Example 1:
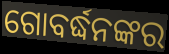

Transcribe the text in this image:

ଗୋବର୍ଦ୍ଧନଙ୍କର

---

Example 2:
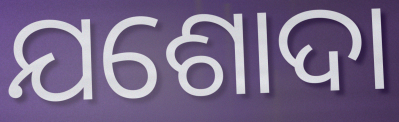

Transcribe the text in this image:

ଯଶୋଦା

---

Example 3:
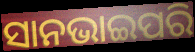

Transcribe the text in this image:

ସାନଭାଇପରି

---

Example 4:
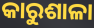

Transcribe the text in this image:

କାରୁଶାଳା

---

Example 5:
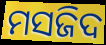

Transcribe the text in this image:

ମସଜିଦ